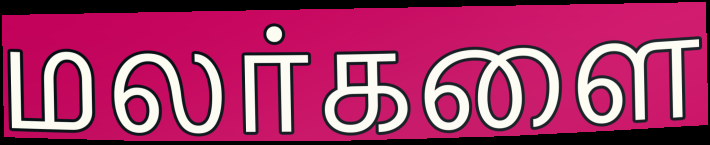
மலர்களை